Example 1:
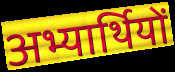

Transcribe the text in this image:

अभ्यार्थियों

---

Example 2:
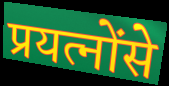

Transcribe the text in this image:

प्रयत्नोंसे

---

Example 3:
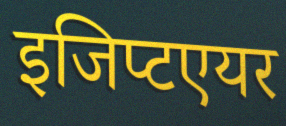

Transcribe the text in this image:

इजिप्टएयर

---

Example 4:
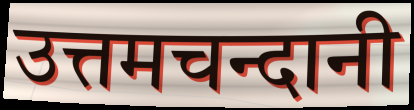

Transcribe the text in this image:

उत्तमचन्दानी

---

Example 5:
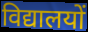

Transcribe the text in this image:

विद्यालयों